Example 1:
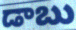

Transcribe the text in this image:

డాబు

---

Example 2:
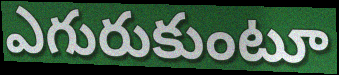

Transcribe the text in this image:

ఎగురుకుంటూ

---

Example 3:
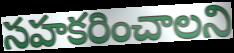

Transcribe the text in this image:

సహకరించాలని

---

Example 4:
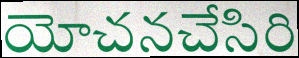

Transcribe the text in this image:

యోచనచేసిరి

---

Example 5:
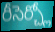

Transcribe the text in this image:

రీసెర్చ్లో